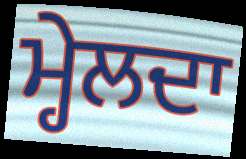
ਮ੍ਹੇਲਦਾ